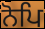
ਨੋਪਿ